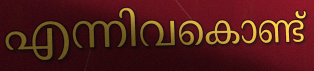
എന്നിവകൊണ്ട്